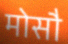
मोसौ